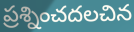
ప్రశ్నించదలచిన